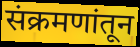
संक्रमणांतून